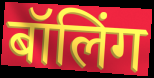
बॉलिंग